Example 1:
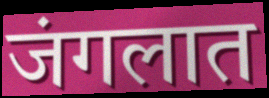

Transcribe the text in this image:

जंगलात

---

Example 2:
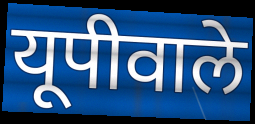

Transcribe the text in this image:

यूपीवाले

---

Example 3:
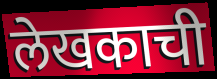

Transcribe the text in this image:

लेखकाची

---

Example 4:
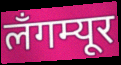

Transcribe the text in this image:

लँगम्यूर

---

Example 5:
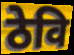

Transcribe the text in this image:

ठेवि